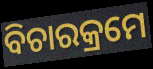
ବିଚାରକ୍ରମେ